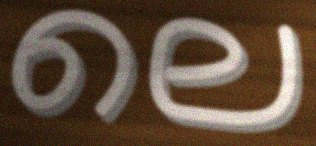
ലെ